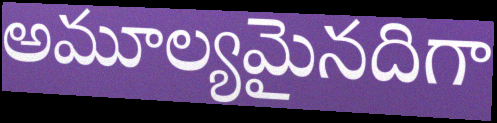
అమూల్యమైనదిగా